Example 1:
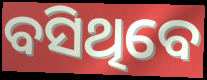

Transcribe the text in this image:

ବସିଥିବେ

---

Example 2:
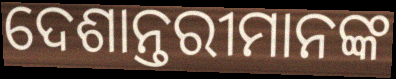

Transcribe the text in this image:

ଦେଶାନ୍ତରୀମାନଙ୍କ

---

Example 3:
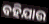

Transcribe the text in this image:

ବହିଯାଉ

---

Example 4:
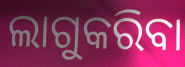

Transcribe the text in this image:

ଲାଗୁକରିବା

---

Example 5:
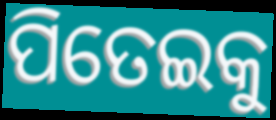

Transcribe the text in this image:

ପିତେଇକୁ